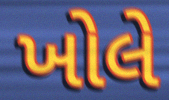
ખોલે